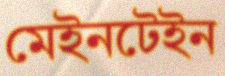
মেইনটেইন